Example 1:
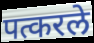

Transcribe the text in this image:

पत्करले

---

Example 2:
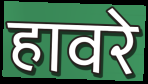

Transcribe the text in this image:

हावरे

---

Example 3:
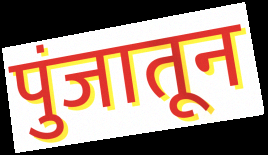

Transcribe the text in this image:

पुंजातून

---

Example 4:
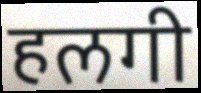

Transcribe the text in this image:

हलगी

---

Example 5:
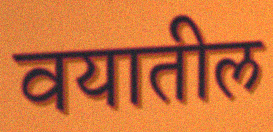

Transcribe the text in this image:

वयातील